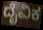
ದೈವಿಕ